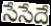
సేసేదే